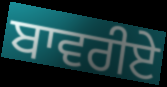
ਬਾਵਰੀਏ